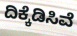
ದಿಕ್ಕೆಡಿಸಿವೆ